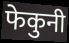
फेकुनी